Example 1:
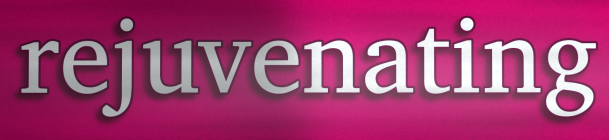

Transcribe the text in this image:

rejuvenating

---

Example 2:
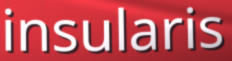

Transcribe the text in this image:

insularis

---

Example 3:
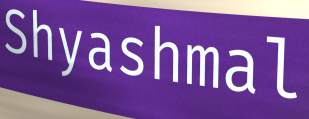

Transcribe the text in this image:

Shyashmal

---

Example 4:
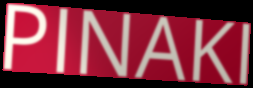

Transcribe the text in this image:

PINAKI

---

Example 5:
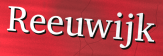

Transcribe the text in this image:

Reeuwijk